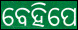
ବେହିପେ